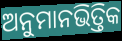
ଅନୁମାନଭିତ୍ତିକ